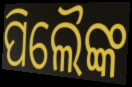
ପିଲୈଙ୍କ